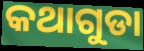
କଥାଗୁଡା